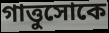
গাত্তুসোকে